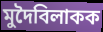
মুদৈবিলাকক